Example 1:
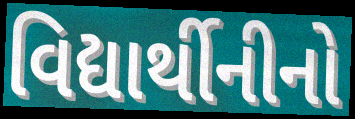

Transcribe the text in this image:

વિદ્યાર્થીનીનો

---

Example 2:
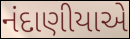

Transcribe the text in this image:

નંદાણીયાએ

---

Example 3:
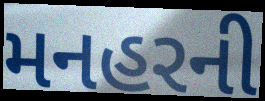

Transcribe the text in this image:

મનહરની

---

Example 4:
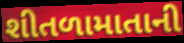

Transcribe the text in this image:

શીતળામાતાની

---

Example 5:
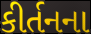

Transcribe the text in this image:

કીર્તનના